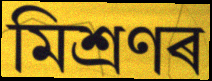
মিশ্ৰণৰ